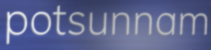
potsunnam